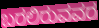
ಬರಲಿರುವವರ